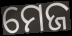
ମେଜ